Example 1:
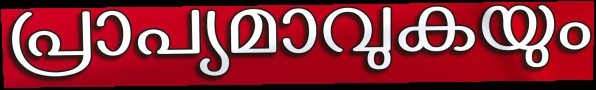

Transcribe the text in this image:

പ്രാപ്യമാവുകയും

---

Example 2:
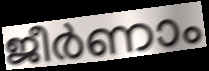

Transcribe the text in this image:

ജീർണാം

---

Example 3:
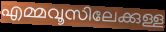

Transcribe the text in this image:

എമ്മവൂസിലേക്കുള്ള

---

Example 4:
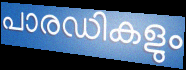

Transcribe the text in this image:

പാരഡികളും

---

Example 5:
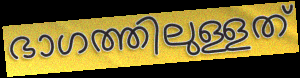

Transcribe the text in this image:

ഭാഗത്തിലുള്ളത്